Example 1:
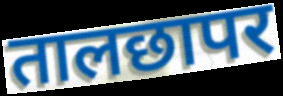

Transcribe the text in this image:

तालछापर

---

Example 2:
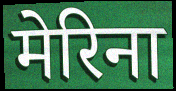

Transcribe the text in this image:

मेरिना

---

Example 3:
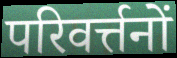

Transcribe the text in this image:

परिवर्त्तनों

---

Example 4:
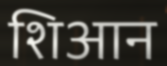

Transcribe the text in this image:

शिआन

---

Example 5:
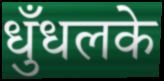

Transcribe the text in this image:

धुँधलके